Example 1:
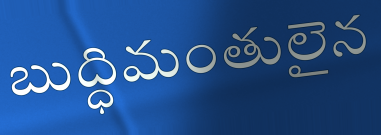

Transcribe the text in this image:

బుద్ధిమంతులైన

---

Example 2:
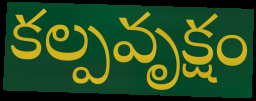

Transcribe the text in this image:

కల్పవృక్షం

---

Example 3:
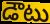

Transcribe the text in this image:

డౌటు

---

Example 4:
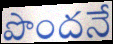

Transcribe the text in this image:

పొందనే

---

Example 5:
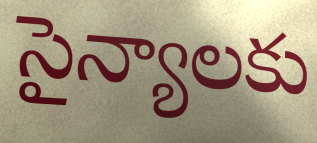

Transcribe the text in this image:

సైన్యాలకు